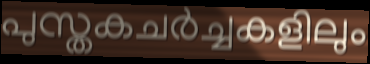
പുസ്തകചർച്ചകളിലും